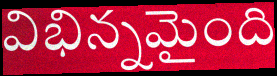
విభిన్నమైంది